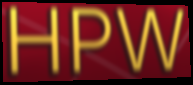
HPW